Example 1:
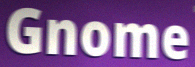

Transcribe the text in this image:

Gnome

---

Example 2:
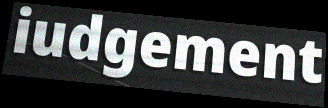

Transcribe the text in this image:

iudgement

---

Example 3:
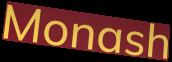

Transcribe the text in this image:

Monash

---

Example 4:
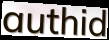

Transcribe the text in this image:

authid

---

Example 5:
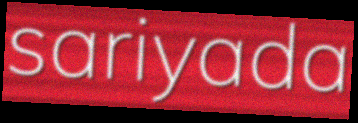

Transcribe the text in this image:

sariyada